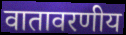
वातावरणीय